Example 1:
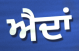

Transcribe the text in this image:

ਐਦਾਂ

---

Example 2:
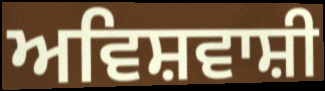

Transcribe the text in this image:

ਅਵਿਸ਼ਵਾਸ਼ੀ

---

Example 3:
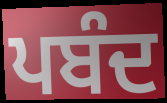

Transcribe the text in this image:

ਪਬੰਦ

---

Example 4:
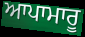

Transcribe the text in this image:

ਆਪਾਮਾਰੂ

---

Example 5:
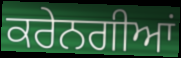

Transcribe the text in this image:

ਕਰੇਨਗੀਆਂ